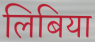
लिबिया